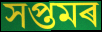
সপ্তমৰ